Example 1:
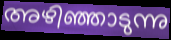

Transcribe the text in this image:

അഴിഞ്ഞാടുന്നു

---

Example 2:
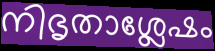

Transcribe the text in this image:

നിഭൃതാശ്ലേഷം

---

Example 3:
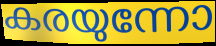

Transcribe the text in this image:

കരയുന്നോ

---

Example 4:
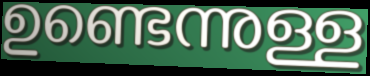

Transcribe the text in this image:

ഉണ്ടെന്നുള്ള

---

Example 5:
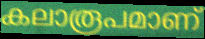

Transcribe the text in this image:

കലാരൂപമാണ്